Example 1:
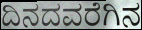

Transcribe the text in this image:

ದಿನದವರೆಗಿನ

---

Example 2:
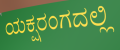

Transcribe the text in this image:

ಯಕ್ಷರಂಗದಲ್ಲಿ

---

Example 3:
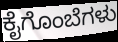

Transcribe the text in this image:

ಕೈಗೊಂಬೆಗಳು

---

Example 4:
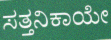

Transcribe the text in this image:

ಸತ್ತನಿಕಾಯೇ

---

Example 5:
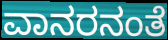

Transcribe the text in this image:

ವಾನರನಂತೆ